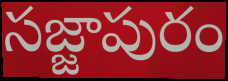
సజ్జాపురం